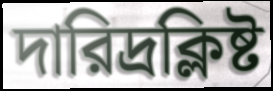
দারিদ্রক্লিষ্ট